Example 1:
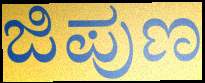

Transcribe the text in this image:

ಜಿಪುಣ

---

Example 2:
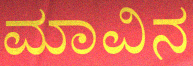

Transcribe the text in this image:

ಮಾವಿನ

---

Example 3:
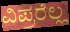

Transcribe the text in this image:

ವಿಪ್ರರೆಲ್ಲ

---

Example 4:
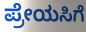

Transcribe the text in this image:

ಪ್ರೇಯಸಿಗೆ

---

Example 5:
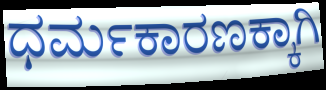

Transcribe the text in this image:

ಧರ್ಮಕಾರಣಕ್ಕಾಗಿ